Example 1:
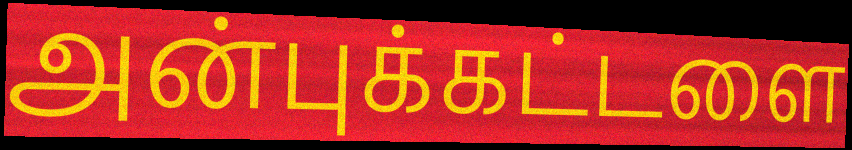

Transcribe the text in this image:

அன்புக்கட்டளை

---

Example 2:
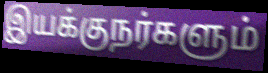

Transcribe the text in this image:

இயக்குநர்களும்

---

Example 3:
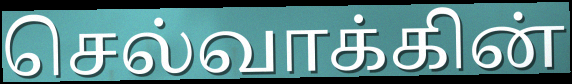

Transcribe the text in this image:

செல்வாக்கின்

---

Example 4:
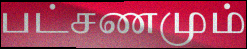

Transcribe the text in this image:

பட்சணமும்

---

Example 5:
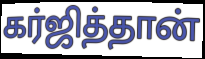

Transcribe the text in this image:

கர்ஜித்தான்